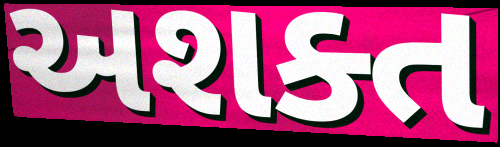
અશક્ત